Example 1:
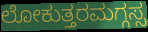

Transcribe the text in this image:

ಲೋಕುತ್ತರಮಗ್ಗಸ್ಸ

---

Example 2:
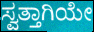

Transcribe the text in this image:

ಸ್ವತ್ತಾಗಿಯೇ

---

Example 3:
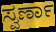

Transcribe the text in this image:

ಸ್ವರ್ಣಾ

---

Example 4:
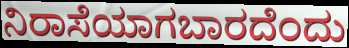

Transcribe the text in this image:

ನಿರಾಸೆಯಾಗಬಾರದೆಂದು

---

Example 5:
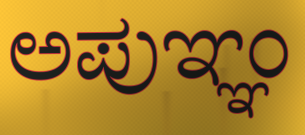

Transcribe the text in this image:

ಅಪುಞ್ಞಂ